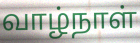
வாழ்நாள்